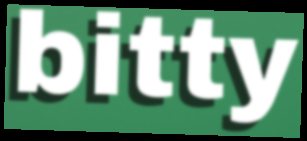
bitty